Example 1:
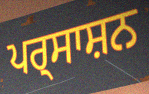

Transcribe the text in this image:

ਪਰ੍ਸਾਸ਼ਨ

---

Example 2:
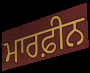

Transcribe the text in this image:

ਮਾਰਫ਼ੀਨ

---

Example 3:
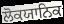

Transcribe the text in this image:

ਲੋਕਯਾਨਿਕ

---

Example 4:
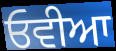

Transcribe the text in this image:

ਓਵੀਆ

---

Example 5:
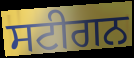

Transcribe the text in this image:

ਸਟੀਗਨ